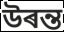
উৰন্ত